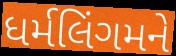
ધર્મલિંગમને